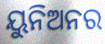
ୟୁନିଅନର